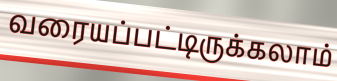
வரையப்பட்டிருக்கலாம்